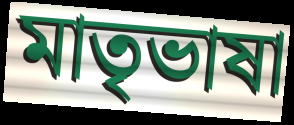
মাতৃভাষা